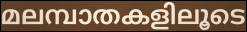
മലമ്പാതകളിലൂടെ